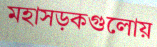
মহাসড়কগুলোয়